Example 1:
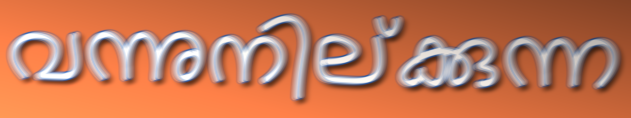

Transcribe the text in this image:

വന്നുനില്ക്കുന്ന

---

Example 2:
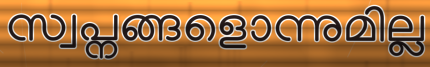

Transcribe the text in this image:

സ്വപ്നങ്ങളൊന്നുമില്ല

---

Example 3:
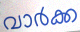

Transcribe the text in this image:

വാർക്ക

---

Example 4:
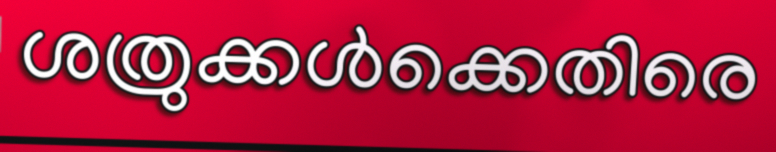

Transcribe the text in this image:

ശത്രുക്കൾക്കെതിരെ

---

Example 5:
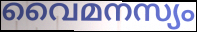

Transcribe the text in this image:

വൈമനസ്യം